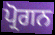
ਪ੍ਰੋਗਨ